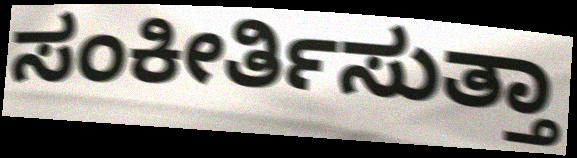
ಸಂಕೀರ್ತಿಸುತ್ತಾ